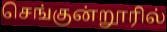
செங்குன்றூரில்